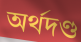
অর্থদণ্ড